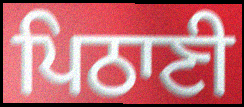
ਪਿਠਾਣੀ